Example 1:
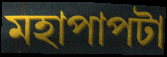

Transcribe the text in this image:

মহাপাপটা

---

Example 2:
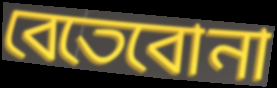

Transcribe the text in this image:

বেতেবোনা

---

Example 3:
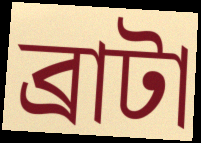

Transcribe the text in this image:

ব্রাটা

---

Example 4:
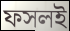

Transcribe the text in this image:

ফসলই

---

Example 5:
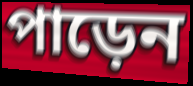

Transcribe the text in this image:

পাড়েন